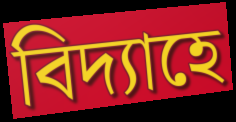
বিদ্যাহে